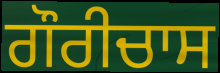
ਗੌਰੀਚਾਸ